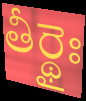
తీర్థైః